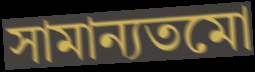
সামান্যতমো